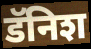
डॅनिश